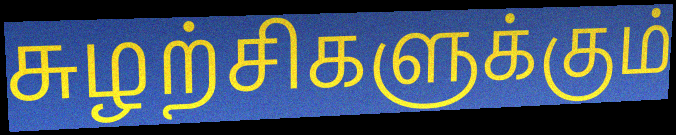
சுழற்சிகளுக்கும்